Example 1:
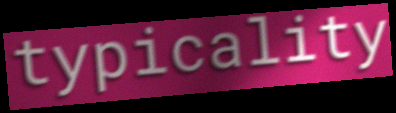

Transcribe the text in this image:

typicality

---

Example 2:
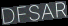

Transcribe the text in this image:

DFSAR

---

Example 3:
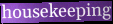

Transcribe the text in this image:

housekeeping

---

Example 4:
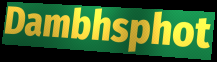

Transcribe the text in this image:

Dambhsphot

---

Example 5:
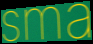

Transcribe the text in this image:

sma